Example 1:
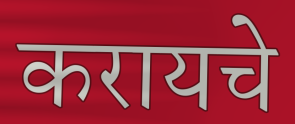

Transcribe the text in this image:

करायचे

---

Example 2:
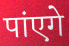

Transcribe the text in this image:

पांएगे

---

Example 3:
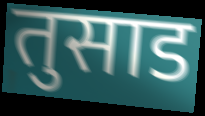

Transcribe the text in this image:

तुसाड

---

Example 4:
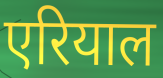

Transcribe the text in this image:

एरियाल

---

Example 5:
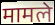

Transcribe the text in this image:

मामले